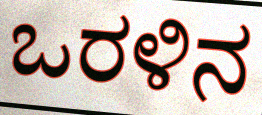
ಒರಳಿನ